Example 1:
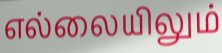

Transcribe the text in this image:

எல்லையிலும்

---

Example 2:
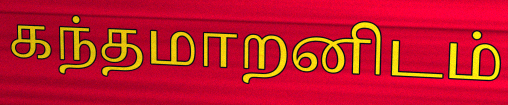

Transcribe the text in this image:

கந்தமாறனிடம்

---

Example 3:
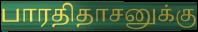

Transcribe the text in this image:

பாரதிதாசனுக்கு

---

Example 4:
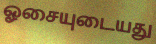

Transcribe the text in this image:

ஓசையுடையது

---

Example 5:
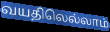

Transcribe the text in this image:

வயதிலெல்லாம்